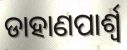
ଡାହାଣପାର୍ଶ୍ୱ